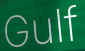
Gulf